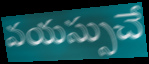
వయస్సుచే